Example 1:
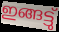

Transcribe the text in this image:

ഇങ്ങട്ടു്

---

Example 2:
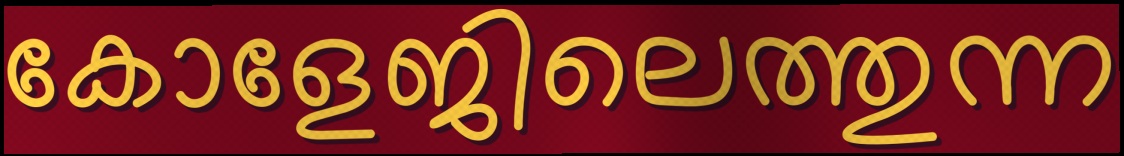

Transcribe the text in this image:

കോളേജിലെത്തുന്ന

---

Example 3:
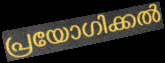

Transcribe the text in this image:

പ്രയോഗിക്കൽ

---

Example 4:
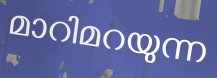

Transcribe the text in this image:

മാറിമറയുന്ന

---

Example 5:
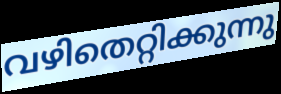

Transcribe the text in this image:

വഴിതെറ്റിക്കുന്നു